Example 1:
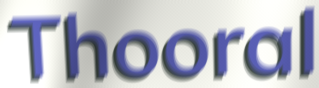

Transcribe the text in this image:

Thooral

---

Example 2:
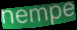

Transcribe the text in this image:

nempe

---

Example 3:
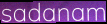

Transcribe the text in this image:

sadanam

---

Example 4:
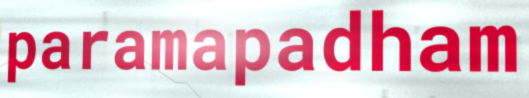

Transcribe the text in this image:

paramapadham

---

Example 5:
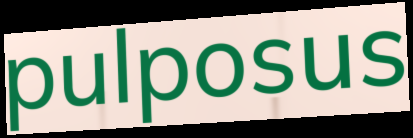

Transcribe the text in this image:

pulposus